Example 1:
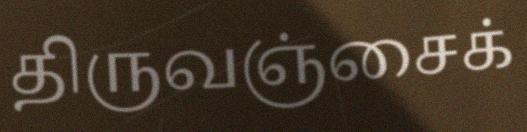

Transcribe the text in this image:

திருவஞ்சைக்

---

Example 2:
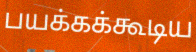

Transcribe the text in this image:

பயக்கக்கூடிய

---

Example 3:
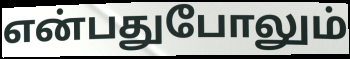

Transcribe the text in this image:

என்பதுபோலும்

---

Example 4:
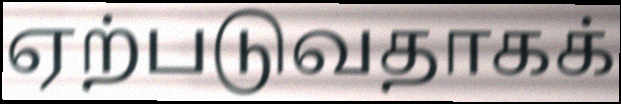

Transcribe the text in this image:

ஏற்படுவதாகக்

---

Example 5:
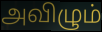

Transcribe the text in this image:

அவிழும்